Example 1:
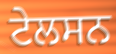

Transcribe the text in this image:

ਟੇਲਸਨ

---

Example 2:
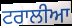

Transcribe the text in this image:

ਟਰਾਲੀਆ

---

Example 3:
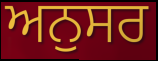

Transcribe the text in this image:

ਅਨੁਸਰ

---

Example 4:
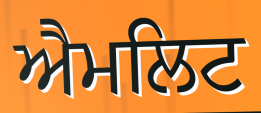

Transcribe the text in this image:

ਐਮਲਿਟ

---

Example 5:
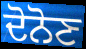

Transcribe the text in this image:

ਦੋਨੋਣ